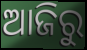
ଆଜିରୁ